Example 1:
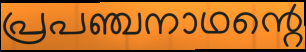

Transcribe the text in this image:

പ്രപഞ്ചനാഥന്റെ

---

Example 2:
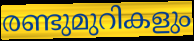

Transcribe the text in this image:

രണ്ടുമുറികളും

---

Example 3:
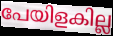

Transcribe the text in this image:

പേയിളകില്ല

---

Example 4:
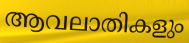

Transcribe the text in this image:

ആവലാതികളും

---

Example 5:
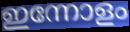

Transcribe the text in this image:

ഇന്നോളം